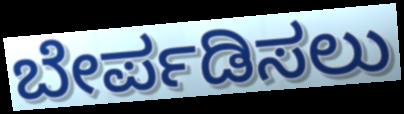
ಬೇರ್ಪಡಿಸಲು